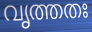
വൃത്തതഃ